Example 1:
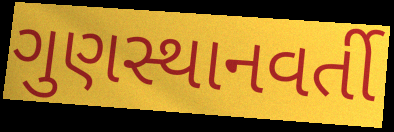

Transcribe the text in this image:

ગુણસ્થાનવર્તી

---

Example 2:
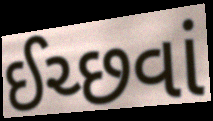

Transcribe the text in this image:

ઈચ્છવાં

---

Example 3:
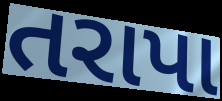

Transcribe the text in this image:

તરાપા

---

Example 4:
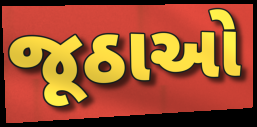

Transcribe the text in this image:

જૂઠાઓ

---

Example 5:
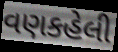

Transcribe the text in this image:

વણકહેલી